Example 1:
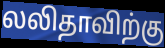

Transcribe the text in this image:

லலிதாவிற்கு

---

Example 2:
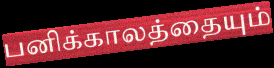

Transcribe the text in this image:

பனிக்காலத்தையும்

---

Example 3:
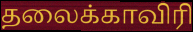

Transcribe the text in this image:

தலைக்காவிரி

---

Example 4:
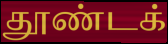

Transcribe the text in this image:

தூண்டக்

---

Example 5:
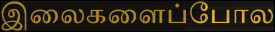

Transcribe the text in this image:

இலைகளைப்போல